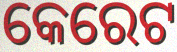
କେରେଟ